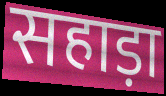
सहाड़ा